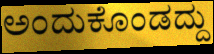
ಅಂದುಕೊಂಡದ್ದು